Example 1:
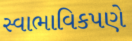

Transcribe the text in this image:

સ્વાભાવિકપણે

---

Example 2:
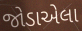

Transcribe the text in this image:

જોડાએલા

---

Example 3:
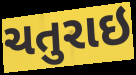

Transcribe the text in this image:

ચતુરાઇ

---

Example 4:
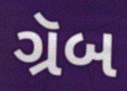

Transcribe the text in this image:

ગ્રૅબ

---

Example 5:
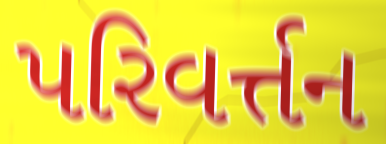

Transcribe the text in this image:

પરિવર્ત્તન